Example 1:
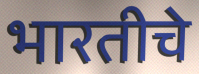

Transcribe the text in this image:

भारतीचे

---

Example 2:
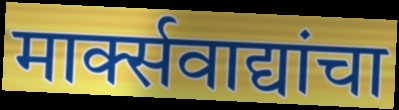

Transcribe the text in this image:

मार्क्‍सवाद्यांचा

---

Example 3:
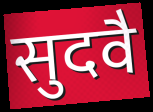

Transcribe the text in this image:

सुदवै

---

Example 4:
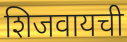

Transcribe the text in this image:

शिजवायची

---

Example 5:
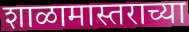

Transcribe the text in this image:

शाळामास्तराच्या